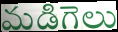
మడిగెలు